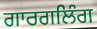
ਗਾਰਗਲਿੰਗ